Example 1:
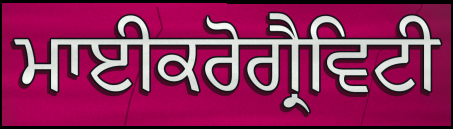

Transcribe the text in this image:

ਮਾਈਕਰੋਗ੍ਰੈਵਿਟੀ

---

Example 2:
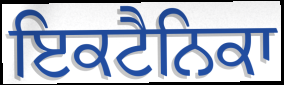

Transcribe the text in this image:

ਇਕਟੈਨਿਕਾ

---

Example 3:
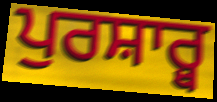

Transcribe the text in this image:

ਪੁਰਸ਼ਾਰ੍ਥ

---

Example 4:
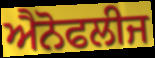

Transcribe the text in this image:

ਐਨੋਫਲੀਜ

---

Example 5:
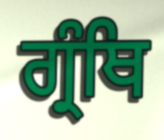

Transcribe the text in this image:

ਗ੍ਰੰਥਿ